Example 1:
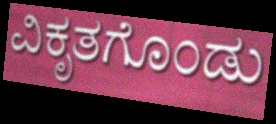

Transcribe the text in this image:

ವಿಕೃತಗೊಂಡು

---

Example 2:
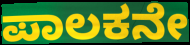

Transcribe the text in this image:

ಪಾಲಕನೇ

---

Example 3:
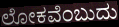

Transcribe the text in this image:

ಲೋಕವೆಂಬುದು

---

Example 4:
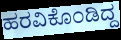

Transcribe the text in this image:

ಹರವಿಕೊಂಡಿದ್ದ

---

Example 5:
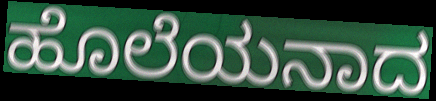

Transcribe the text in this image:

ಹೊಲೆಯನಾದ